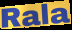
Rala